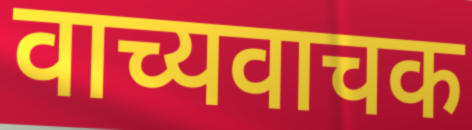
वाच्यवाचक